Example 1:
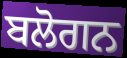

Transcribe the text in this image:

ਬਲੋਗਨ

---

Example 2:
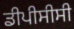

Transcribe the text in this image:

ਡੀਪੀਸੀਸੀ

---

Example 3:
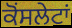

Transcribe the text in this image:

ਕੋਂਸਲੇਟਾਂ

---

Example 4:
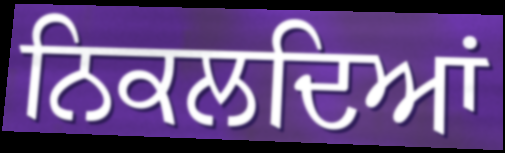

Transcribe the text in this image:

ਨਿਕਲਦਿਆਂ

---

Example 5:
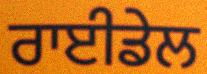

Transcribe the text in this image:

ਰਾਈਡੇਲ